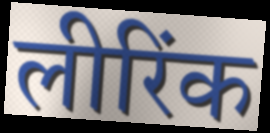
लीरिंक